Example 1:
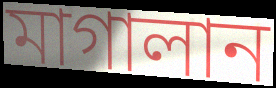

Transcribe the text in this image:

মাগালান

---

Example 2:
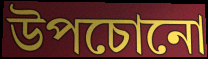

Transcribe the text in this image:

উপচোনো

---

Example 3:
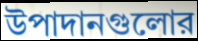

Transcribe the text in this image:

উপাদানগুলোর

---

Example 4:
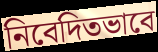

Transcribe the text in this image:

নিবেদিতভাবে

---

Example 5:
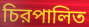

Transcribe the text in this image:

চিরপালিত